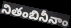
నితంబినీనాం